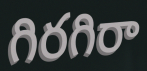
గిరగిరా